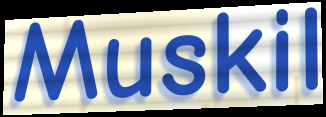
Muskil